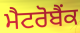
ਮੈਟਰੋਬੈਂਕ